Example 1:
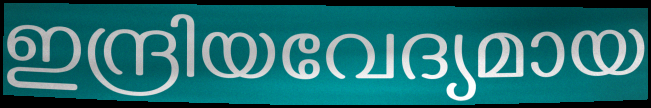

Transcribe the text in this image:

ഇന്ദ്രിയവേദ്യമായ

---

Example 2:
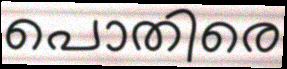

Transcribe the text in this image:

പൊതിരെ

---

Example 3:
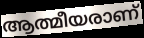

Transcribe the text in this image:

ആത്മീയരാണ്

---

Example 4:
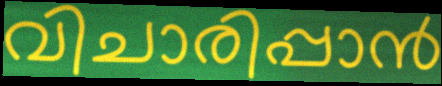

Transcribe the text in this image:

വിചാരിപ്പാൻ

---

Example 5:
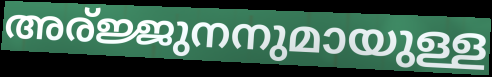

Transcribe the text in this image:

അര്ജ്ജുനനുമായുള്ള